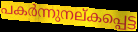
പകർന്നുനല്കപ്പെട്ട